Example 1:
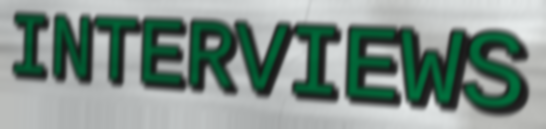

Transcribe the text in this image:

INTERVIEWS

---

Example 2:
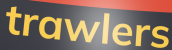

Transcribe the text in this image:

trawlers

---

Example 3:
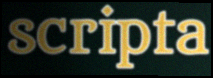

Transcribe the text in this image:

scripta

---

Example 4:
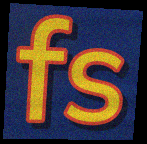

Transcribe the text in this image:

fs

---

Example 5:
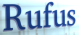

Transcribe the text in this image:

Rufus